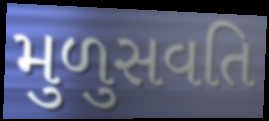
મુળુસવતિ